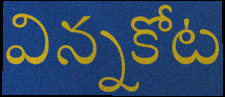
విన్నకోట